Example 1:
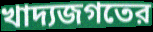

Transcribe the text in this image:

খাদ্যজগতের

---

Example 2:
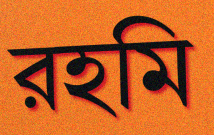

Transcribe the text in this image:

রহমি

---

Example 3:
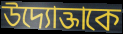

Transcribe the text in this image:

উদ্যোক্তাকে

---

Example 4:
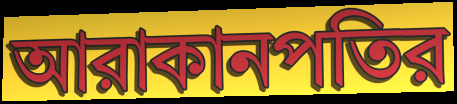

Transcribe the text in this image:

আরাকানপতির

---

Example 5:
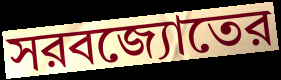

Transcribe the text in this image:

সরবজ্যোতের